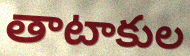
తాటాకుల